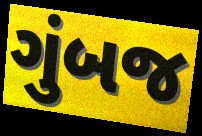
ગુંબજ